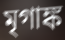
মৃগাঙ্ক